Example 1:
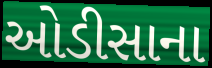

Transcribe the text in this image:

ઓડીસાના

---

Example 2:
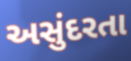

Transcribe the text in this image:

અસુંદરતા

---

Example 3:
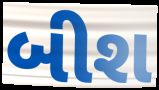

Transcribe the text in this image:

બીશ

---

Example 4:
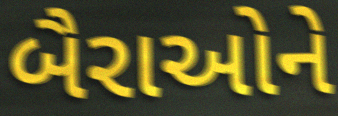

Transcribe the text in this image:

બૈરાઓને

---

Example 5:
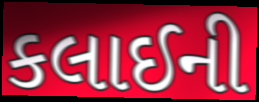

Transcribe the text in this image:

કલાઈની